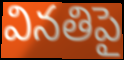
వినతిపై